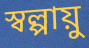
স্বল্পায়ু